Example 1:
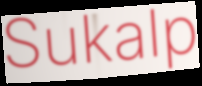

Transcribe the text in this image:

Sukalp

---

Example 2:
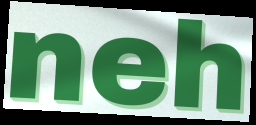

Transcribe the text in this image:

neh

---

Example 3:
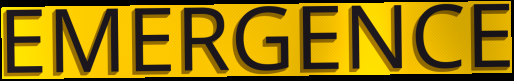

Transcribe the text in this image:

EMERGENCE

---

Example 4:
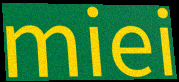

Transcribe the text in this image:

miei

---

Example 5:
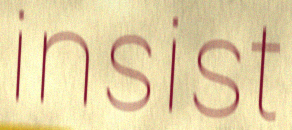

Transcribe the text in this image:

insist